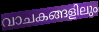
വാചകങ്ങളിലും